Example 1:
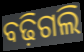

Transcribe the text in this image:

ବଢ଼ିଗଲି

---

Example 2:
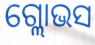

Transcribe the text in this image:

ଗ୍ଲୋଭସ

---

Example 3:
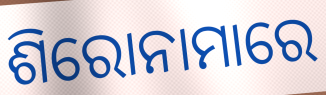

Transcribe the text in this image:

ଶିରୋନାମାରେ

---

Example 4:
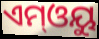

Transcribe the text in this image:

ଏମ୍ଓୟୁ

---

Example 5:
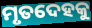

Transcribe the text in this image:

ମୃତଦେହକୁ